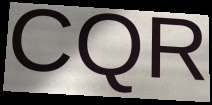
CQR